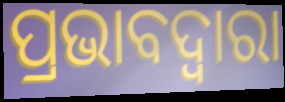
ପ୍ରଭାବଦ୍ୱାରା